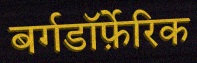
बर्गडॉर्फ़ेरिक